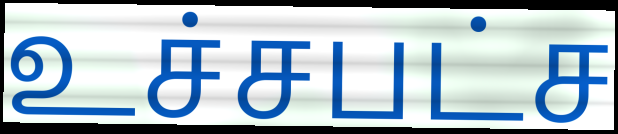
உச்சபட்ச